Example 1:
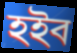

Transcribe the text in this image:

হইব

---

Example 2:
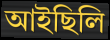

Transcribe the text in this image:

আইছিলি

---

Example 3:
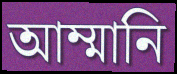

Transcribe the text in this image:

আম্মানি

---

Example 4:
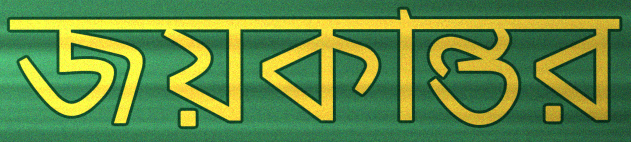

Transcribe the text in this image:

জয়কান্তর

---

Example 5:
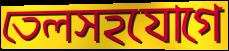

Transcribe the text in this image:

তেলসহযোগে